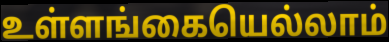
உள்ளங்கையெல்லாம்